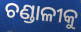
ଚଣ୍ଡାଳୀକୁ